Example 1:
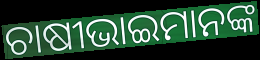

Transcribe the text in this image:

ଚାଷୀଭାଇମାନଙ୍କ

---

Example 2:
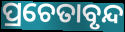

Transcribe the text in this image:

ପ୍ରଚେତାବୃନ୍ଦ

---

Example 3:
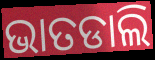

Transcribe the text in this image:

ଭାତଡାଲି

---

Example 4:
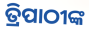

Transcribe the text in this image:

ତ୍ରିପାଠୀଙ୍କ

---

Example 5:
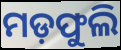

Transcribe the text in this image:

ମଡ଼ଫୁଲି